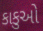
કાકુઓ